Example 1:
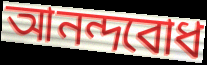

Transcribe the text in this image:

আনন্দবোধ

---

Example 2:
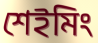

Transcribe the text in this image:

শেইমিং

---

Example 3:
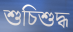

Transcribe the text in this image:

শুচিশুদ্ধ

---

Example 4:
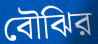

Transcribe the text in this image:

বৌঝির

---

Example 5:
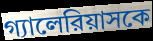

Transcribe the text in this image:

গ্যালেরিয়াসকে